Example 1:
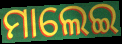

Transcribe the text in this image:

ମାଲେଇ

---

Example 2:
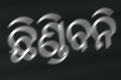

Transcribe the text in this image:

ଛିଣ୍ଡିବନି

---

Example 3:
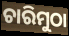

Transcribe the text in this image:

ଚାରିମୁଠା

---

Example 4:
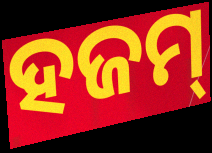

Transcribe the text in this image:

ହଜମ୍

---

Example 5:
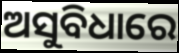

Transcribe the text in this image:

ଅସୁବିଧାରେ